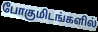
போகுமிடங்களில்